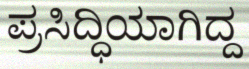
ಪ್ರಸಿದ್ಧಿಯಾಗಿದ್ದ